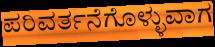
ಪರಿವರ್ತನೆಗೊಳ್ಳುವಾಗ